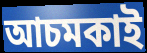
আচমকাই